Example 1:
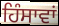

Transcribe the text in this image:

ਹਿੰਸਾਵਾਂ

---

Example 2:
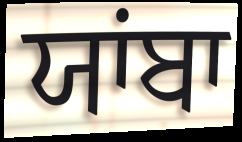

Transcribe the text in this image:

ਯਾਂਬਾ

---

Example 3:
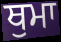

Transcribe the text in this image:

ਥੁਮਾ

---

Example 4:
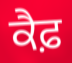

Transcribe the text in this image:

ਕੈਫ਼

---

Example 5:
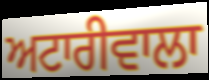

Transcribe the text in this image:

ਅਟਾਰੀਵਾਲਾ